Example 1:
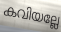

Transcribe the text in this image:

കവിയല്ലേ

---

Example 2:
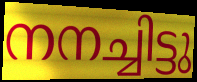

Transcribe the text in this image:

നനച്ചിട്ടു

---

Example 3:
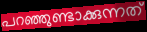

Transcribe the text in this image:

പറഞ്ഞുണ്ടാക്കുന്നത്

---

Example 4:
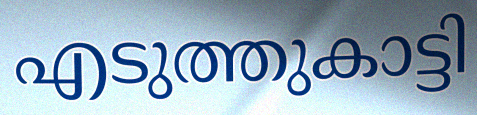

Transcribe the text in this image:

എടുത്തുകാട്ടി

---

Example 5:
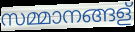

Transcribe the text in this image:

സമ്മാനങ്ങള്